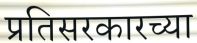
प्रतिसरकारच्या